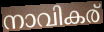
നാവികര്